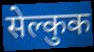
सेल्कुक